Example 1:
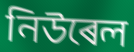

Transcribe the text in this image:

নিউৰেল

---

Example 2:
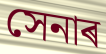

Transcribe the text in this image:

সেনাৰ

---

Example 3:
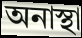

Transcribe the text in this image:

অনাস্থা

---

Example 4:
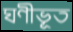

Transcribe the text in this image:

ঘণীভূত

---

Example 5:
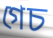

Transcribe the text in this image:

গেচ